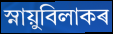
স্নায়ুবিলাকৰ